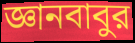
জ্ঞানবাবুর